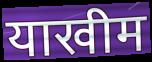
याखीम